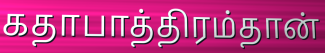
கதாபாத்திரம்தான்